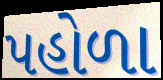
પહોળા